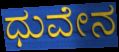
ಧುವೇನ